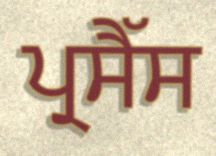
ਪ੍ਰਸੈੱਸ